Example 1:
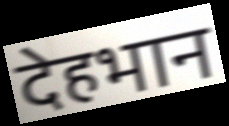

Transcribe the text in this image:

देहभान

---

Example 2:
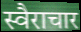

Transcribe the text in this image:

स्वैराचार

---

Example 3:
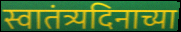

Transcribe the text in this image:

स्वातंत्र्यदिनाच्या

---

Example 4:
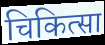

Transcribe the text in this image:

चिकित्सा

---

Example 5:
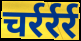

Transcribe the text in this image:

चर्रर्रर्र